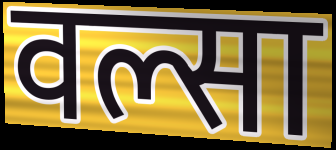
वल्सा